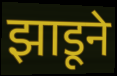
झाडूने